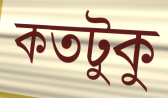
কতটুকু